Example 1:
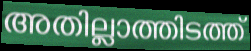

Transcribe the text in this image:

അതില്ലാത്തിടത്ത്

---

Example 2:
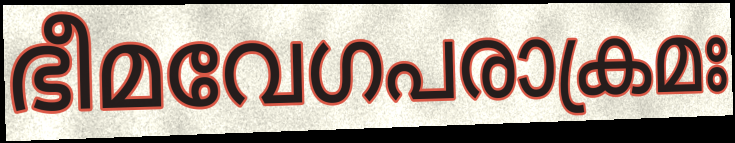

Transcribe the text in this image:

ഭീമവേഗപരാക്രമഃ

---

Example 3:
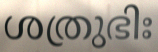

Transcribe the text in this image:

ശത്രുഭിഃ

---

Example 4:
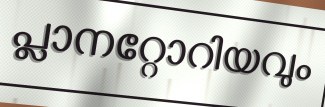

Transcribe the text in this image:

പ്ലാനറ്റോറിയവും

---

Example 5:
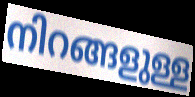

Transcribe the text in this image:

നിറങ്ങളുള്ള